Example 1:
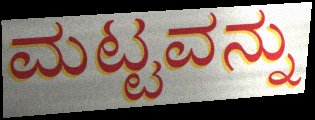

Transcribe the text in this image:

ಮಟ್ಟವನ್ನು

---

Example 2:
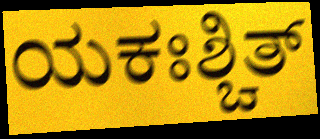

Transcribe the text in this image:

ಯಕಃಶ್ಚಿತ್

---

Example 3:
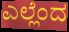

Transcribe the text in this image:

ಎಲ್ಲೆಂದ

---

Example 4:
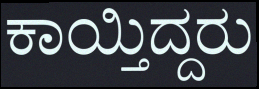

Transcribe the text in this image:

ಕಾಯ್ತಿದ್ದರು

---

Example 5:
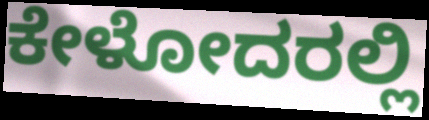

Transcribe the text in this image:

ಕೇಳೋದರಲ್ಲಿ